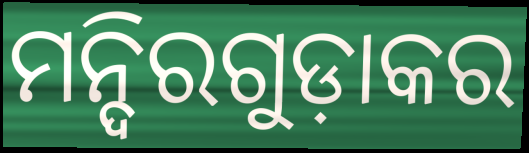
ମନ୍ଦିରଗୁଡ଼ାକର